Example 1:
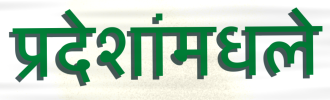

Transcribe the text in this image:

प्रदेशांमधले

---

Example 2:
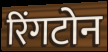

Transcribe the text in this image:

रिंगटोन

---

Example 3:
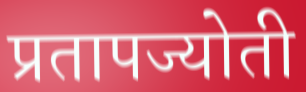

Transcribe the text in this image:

प्रतापज्योती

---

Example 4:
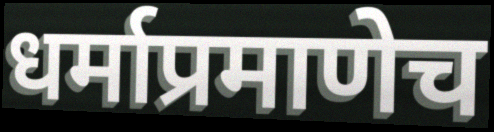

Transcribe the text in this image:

धर्माप्रमाणेच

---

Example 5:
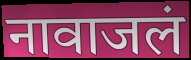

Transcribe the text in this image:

नावाजलं